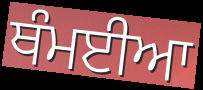
ਥੰਮਈਆ